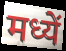
मध्यें